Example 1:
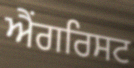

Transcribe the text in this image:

ਐਂਗਰਿਸਟ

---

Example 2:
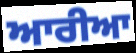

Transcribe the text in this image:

ਆਰੀਆ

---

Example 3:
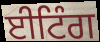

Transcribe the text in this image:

ਈਟਿੰਗ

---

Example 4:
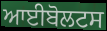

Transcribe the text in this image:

ਆਈਬੋਲਟਸ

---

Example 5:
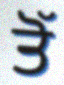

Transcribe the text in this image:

ਤੋੱ